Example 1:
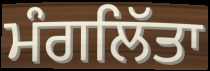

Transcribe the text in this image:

ਮੰਗਲਿੱਤਾ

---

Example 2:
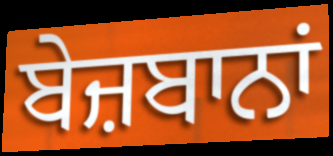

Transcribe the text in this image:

ਬੇਜ਼ਬਾਨਾਂ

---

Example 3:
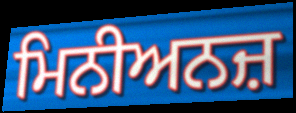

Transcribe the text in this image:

ਮਿਨੀਅਨਜ਼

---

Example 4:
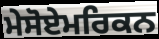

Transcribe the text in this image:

ਮੇਸੋਏਮਰਿਕਨ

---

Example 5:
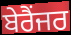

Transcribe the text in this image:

ਬੇਰੈਂਜਰ